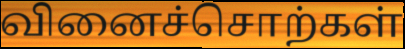
வினைச்சொற்கள்